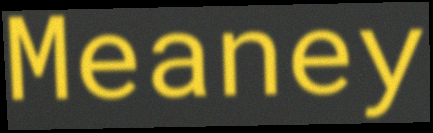
Meaney